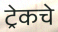
ट्रेकचे